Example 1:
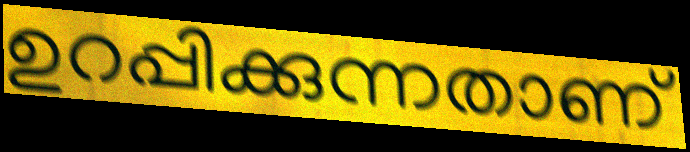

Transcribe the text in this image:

ഉറപ്പിക്കുന്നതാണ്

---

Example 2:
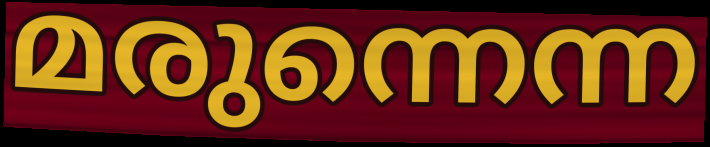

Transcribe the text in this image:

മരുന്നെന്ന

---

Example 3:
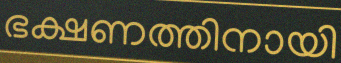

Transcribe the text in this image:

ഭക്ഷണത്തിനായി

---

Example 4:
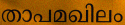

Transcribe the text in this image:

താപമഖിലം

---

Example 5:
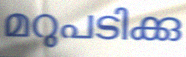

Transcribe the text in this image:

മറുപടിക്കു